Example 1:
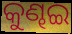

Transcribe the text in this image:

କୁଣ୍ଢଇ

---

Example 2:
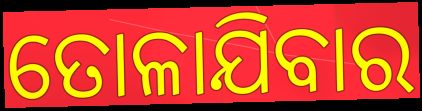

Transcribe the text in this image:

ତୋଳାଯିବାର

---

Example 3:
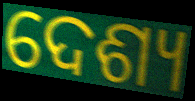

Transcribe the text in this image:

ଦେଶ୍ୟ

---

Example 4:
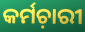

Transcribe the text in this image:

କର୍ମଚ଼ାରୀ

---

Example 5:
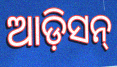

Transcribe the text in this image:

ଆଡ଼ିସନ୍